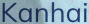
Kanhai